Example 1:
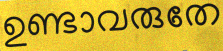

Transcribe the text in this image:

ഉണ്ടാവരുതേ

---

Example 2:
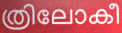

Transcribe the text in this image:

ത്രിലോകീ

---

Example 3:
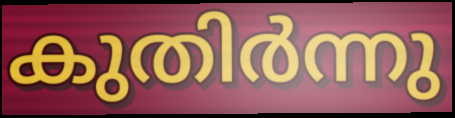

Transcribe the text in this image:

കുതിർന്നു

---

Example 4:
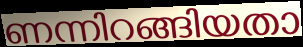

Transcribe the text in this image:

ണന്നിറങ്ങിയതാ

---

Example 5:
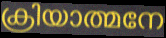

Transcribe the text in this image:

ക്രിയാത്മനേ